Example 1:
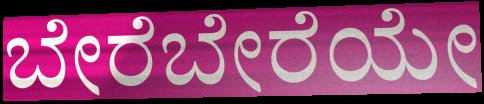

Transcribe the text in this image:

ಬೇರೆಬೇರೆಯೇ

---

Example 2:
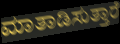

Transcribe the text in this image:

ಮಾತಾಡಿಸುತ್ತಾರೆ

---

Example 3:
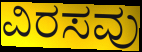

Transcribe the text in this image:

ವಿರಸವು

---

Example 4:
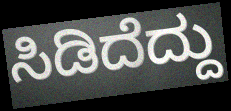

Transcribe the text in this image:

ಸಿಡಿದೆದ್ದು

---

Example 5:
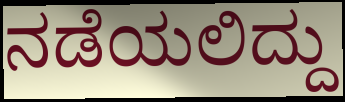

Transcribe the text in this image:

ನಡೆಯಲಿದ್ದು